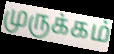
முருக்கம்